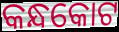
କନ୍ଧକୋଟ